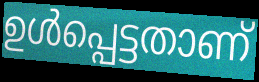
ഉൾപ്പെട്ടതാണ്